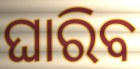
ଘାରିବ